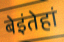
बेइंतेहां